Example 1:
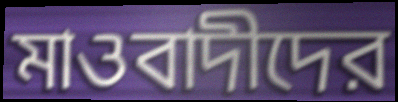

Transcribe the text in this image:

মাওবাদীদের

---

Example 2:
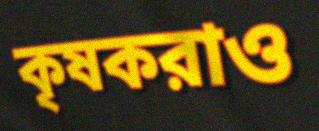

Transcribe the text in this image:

কৃষকরাও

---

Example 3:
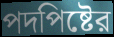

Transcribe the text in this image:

পদপিষ্টের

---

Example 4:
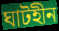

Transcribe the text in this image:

ঘাটহীন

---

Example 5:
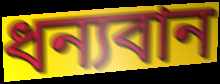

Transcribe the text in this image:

ধন্যবান